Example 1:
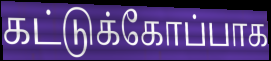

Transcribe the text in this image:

கட்டுக்கோப்பாக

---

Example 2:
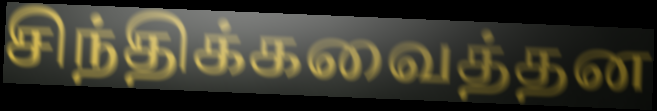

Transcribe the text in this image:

சிந்திக்கவைத்தன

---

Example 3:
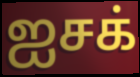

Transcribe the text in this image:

ஐசக்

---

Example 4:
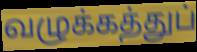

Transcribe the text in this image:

வழுக்கத்துப்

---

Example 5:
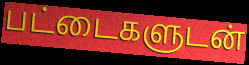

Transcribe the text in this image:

பட்டைகளுடன்